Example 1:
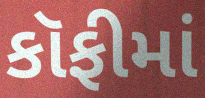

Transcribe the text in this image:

કૉફીમાં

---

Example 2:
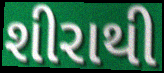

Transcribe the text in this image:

શીરાથી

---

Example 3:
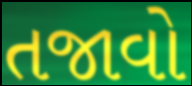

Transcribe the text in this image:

તજાવો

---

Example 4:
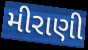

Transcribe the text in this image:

મીરાણી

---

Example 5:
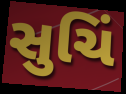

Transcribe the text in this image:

સુચિં